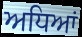
ਅਧਿਆਂ